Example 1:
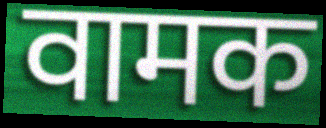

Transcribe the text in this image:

वामक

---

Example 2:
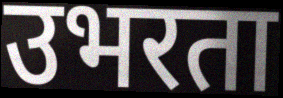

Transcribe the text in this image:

उभरता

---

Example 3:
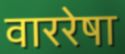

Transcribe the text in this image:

वाररेषा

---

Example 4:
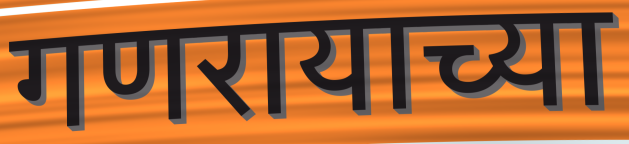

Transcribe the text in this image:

गणरायाच्या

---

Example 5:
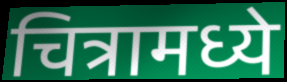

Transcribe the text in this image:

चित्रामध्ये